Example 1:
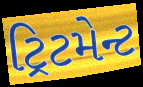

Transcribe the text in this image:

ટ્રિટમેન્ટ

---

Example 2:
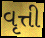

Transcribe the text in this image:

વૃત્તી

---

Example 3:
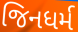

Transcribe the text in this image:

જિનધર્મ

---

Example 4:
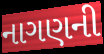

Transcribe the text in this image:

નાગણની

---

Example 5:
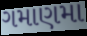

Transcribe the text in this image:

ગમાણમા